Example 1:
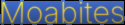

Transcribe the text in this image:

Moabites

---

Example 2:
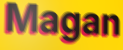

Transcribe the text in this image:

Magan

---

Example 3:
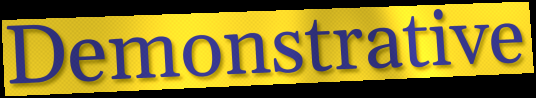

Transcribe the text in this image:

Demonstrative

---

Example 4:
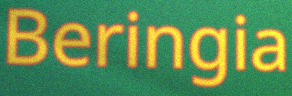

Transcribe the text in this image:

Beringia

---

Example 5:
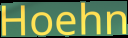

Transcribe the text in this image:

Hoehn